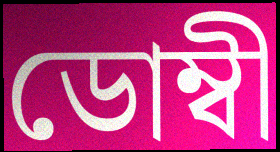
ডোম্বী